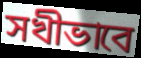
সখীভাবে